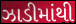
ઝાડીમાંથી